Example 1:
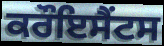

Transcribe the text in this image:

ਕਰੌਇਸੈਂਟਸ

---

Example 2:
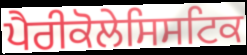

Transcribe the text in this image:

ਪੈਰੀਕੋਲੇਸਿਸਟਿਕ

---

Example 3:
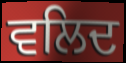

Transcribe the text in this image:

ਵਲਿਦ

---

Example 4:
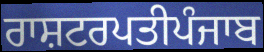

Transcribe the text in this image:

ਰਾਸ਼ਟਰਪਤੀਪੰਜਾਬ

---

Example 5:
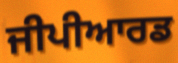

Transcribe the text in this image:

ਜੀਪੀਆਰਡ